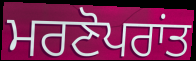
ਮਰਣੋਪਰਾਂਤ